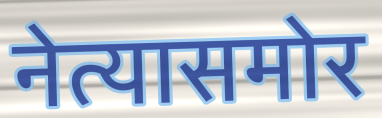
नेत्यासमोर